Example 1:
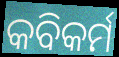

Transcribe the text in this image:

କବିକର୍ମ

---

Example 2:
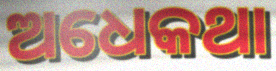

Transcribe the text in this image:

ଅଧେକଥା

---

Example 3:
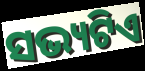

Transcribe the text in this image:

ସଭ୍ୟଟିଏ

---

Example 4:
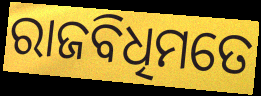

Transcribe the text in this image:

ରାଜବିଧିମତେ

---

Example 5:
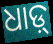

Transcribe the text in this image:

ଧାଡ଼୍